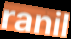
ranil